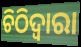
ଚିଠିଦ୍ୱାରା